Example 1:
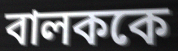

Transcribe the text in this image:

বালককে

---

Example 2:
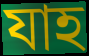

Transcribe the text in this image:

যাহ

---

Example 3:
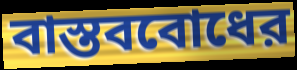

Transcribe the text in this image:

বাস্তববোধের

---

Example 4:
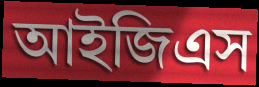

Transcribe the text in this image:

আইজিএস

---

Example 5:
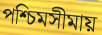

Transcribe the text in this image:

পশ্চিমসীমায়